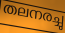
തലനരച്ചു